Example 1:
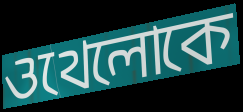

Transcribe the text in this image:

ওথেলোকে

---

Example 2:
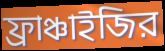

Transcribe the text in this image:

ফ্রাঞ্চাইজির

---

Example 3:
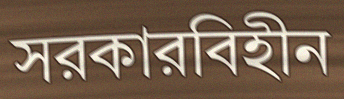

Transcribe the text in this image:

সরকারবিহীন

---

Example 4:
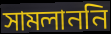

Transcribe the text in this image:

সামলাননি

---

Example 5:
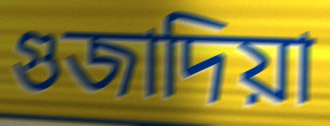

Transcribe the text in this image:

গুজাদিয়া